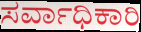
ಸರ್ವಾಧಿಕಾರಿ